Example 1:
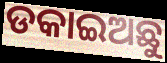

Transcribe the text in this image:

ଡକାଇଅଛୁ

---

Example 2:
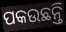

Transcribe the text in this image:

ପକଉଛନ୍ତି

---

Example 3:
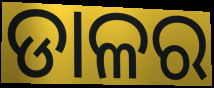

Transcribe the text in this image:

ଡାଳର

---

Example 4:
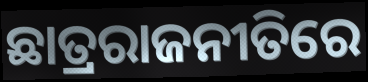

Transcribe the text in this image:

ଛାତ୍ରରାଜନୀତିରେ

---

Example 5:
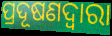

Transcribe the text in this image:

ପ୍ରଦୂଷଣଦ୍ବାରା